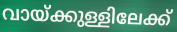
വായ്ക്കുള്ളിലേക്ക്